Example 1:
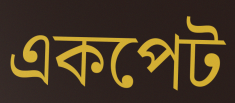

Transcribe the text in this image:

একপেট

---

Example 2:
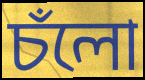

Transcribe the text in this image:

চঁলো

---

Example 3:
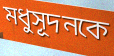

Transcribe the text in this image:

মধুসূদনকে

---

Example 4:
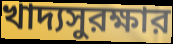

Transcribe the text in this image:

খাদ্যসুরক্ষার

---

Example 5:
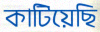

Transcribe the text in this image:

কাটিয়েছি